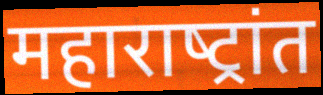
महाराष्ट्रांत